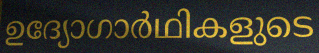
ഉദ്യോഗാർഥികളുടെ